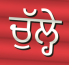
ਚੁੱਲ੍ਹੇ